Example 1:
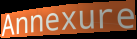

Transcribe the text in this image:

Annexure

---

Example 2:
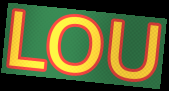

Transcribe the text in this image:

LOU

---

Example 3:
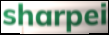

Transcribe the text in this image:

sharpei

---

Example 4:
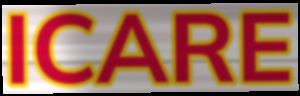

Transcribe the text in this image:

ICARE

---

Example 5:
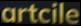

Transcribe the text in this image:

artcile